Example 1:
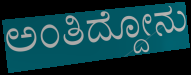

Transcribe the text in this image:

ಅಂತಿದ್ದೋನು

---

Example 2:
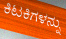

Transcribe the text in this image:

ಕಿಟಕಿಗಳನ್ನು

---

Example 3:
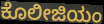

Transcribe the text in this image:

ಕೊಲೀಜಿಯಂ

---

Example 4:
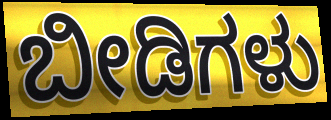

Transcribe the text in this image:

ಬೀಡಿಗಳು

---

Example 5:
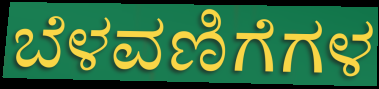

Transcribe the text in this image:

ಬೆಳವಣಿಗೆಗಳ